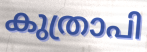
കുത്രാപി